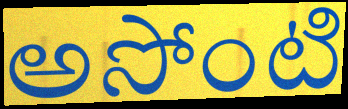
అసోంటి